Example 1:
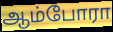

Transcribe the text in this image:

ஆம்போரா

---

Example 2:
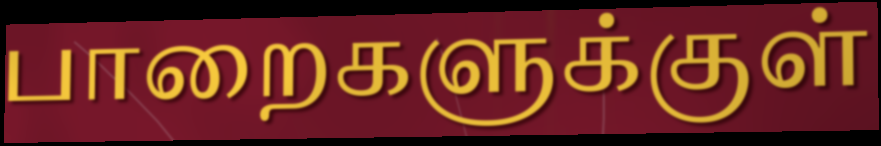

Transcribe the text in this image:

பாறைகளுக்குள்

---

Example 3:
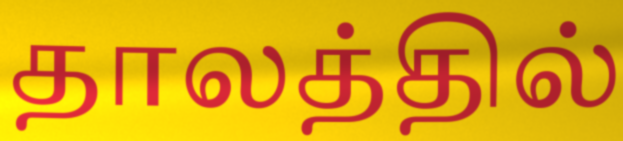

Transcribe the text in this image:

தாலத்தில்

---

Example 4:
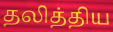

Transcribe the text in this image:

தலித்திய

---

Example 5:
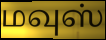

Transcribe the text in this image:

மவுஸ்